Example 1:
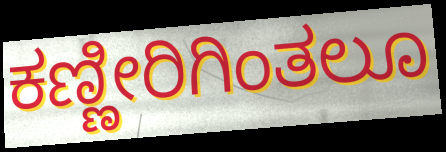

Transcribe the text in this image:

ಕಣ್ಣೀರಿಗಿಂತಲೂ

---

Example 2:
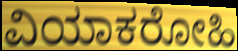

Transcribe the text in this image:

ವಿಯಾಕರೋಹಿ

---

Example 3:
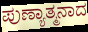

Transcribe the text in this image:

ಪುಣ್ಯಾತ್ಮನಾದ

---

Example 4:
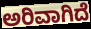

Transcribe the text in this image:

ಅರಿವಾಗಿದೆ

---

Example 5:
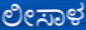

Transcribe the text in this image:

ಲೀಸಾಳ